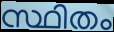
സ്ഥിതം